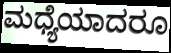
ಮಧ್ಯೆಯಾದರೂ